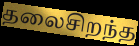
தலைசிறந்த